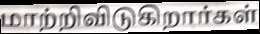
மாற்றிவிடுகிறார்கள்